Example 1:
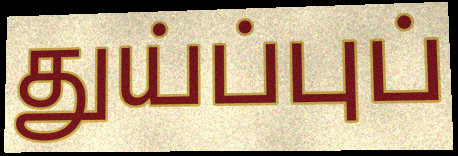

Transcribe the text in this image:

துய்ப்புப்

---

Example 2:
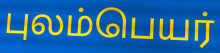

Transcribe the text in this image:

புலம்பெயர்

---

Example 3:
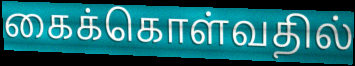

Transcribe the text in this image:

கைக்கொள்வதில்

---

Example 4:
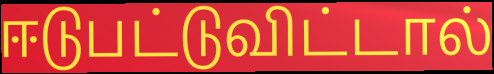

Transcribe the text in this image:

ஈடுபட்டுவிட்டால்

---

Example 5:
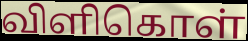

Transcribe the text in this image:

விளிகொள்